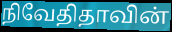
நிவேதிதாவின்